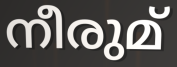
നീരുമ്